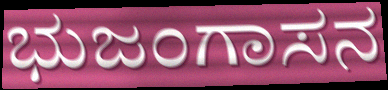
ಭುಜಂಗಾಸನ